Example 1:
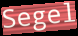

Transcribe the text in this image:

Segel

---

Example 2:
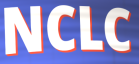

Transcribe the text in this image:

NCLC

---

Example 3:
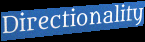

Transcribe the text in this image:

Directionality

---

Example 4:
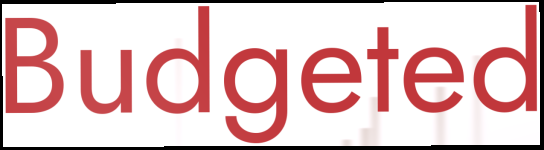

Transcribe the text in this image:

Budgeted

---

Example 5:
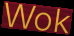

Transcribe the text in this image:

Wok